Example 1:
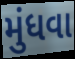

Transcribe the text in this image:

મુંધવા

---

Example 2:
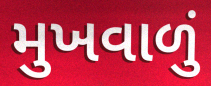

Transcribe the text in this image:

મુખવાળું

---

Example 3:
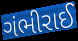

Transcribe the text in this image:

ગંભીરાઈ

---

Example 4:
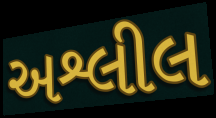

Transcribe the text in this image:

અશ્લીલ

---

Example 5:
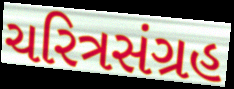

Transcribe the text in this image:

ચરિત્રસંગ્રહ